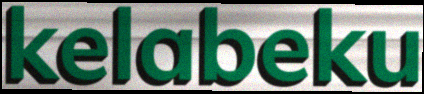
kelabeku